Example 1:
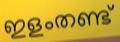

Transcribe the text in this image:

ഇളംതണ്ട്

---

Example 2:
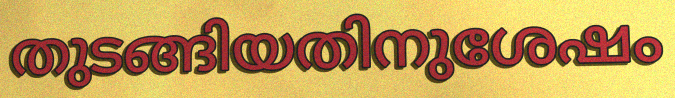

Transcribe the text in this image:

തുടങ്ങിയതിനുശേഷം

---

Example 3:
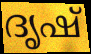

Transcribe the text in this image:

ദൃഷ്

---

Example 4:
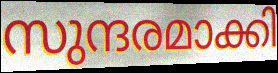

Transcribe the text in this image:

സുന്ദരമാക്കി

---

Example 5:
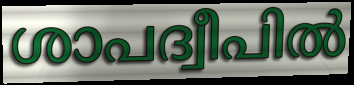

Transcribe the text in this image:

ശാപദ്വീപിൽ